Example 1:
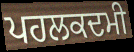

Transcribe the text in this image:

ਪਹਲਕਦਮੀ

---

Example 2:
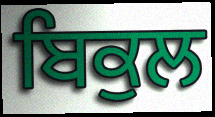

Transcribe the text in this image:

ਬਿਕੁਲ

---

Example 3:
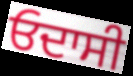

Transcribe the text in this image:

ਓਦਾਸੀ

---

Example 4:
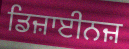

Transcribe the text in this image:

ਡਿਜ਼ਾਈਨਜ਼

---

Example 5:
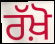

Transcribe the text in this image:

ਰੱਖ਼ੋ